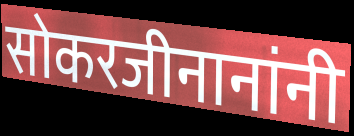
सोकरजीनानांनी